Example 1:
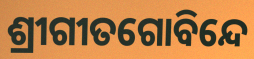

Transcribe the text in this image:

ଶ୍ରୀଗୀତଗୋବିନ୍ଦେ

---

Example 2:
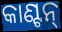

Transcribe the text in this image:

କାଣ୍ଟନ୍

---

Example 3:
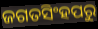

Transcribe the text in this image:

ଜଗତସିଂହପରୁ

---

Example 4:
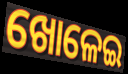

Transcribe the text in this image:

ଖୋଳେଇ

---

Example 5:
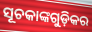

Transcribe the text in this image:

ସୂଚକାଙ୍କଗୁଡ଼ିକର